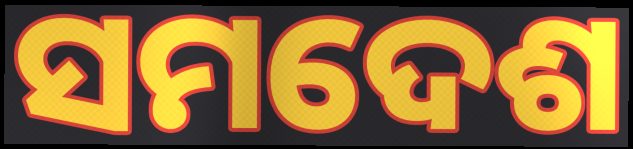
ସମଦେଶ